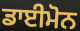
ਡਾਈਮੋਨ